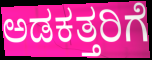
ಅಡಕತ್ತರಿಗೆ